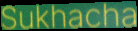
Sukhacha